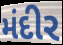
મંદીર